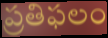
ప్రతిఫలం